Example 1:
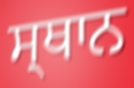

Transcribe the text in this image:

ਸ੍ਥਾਨ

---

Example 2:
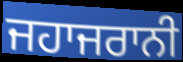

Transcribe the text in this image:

ਜਹਾਜਰਾਨੀ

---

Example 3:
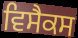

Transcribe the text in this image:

ਵਿਸੈਕਸ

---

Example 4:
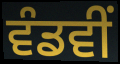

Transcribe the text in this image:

ਵੰਡਵੀਂ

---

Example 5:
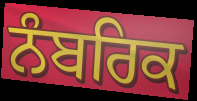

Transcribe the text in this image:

ਨੰਬਰਿਕ